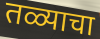
तळ्याचा